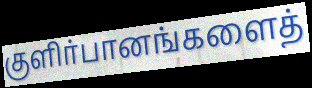
குளிர்பானங்களைத்